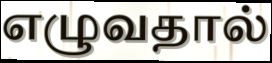
எழுவதால்